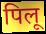
पिलू